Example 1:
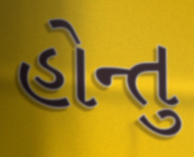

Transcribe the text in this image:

હોન્તુ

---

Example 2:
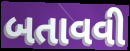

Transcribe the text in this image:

બતાવવી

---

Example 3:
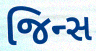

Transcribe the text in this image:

જિન્સ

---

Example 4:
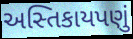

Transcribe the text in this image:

અસ્તિકાયપણું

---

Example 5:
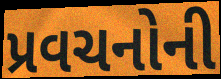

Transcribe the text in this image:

પ્રવચનોની